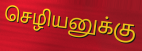
செழியனுக்கு